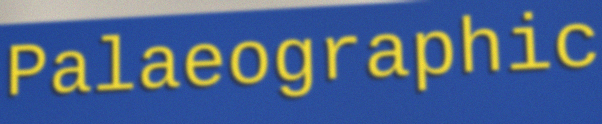
Palaeographic